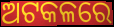
ଅଟକଳରେ